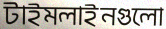
টাইমলাইনগুলো